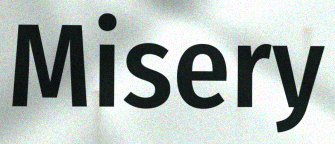
Misery